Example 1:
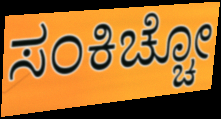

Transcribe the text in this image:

ಸಂಕಿಚ್ಚೋ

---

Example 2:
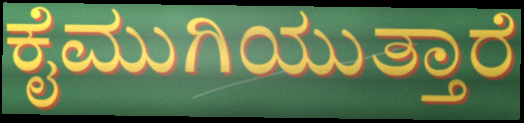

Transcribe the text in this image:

ಕೈಮುಗಿಯುತ್ತಾರೆ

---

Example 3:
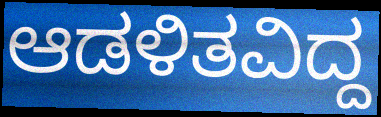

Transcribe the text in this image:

ಆಡಳಿತವಿದ್ದ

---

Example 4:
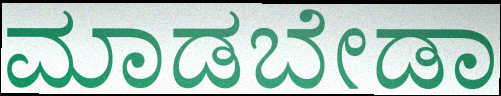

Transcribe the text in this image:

ಮಾಡಬೇಡಾ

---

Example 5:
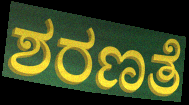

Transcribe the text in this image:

ಶರಣತೆ